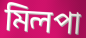
মিলপা